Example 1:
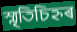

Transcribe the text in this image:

স্মৃতিচিহ্নৰ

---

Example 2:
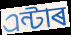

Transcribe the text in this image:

এন্টাৰ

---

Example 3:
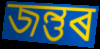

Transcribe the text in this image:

জন্তুৰ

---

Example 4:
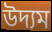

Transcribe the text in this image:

উদ্যম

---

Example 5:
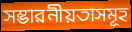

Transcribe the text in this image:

সম্ভাৱনীয়তাসমূহ